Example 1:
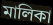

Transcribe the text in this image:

মালিকা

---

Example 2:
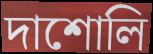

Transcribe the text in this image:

দাশোলি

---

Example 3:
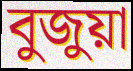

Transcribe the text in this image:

বুজুয়া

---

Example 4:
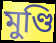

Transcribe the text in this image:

মুণ্ডি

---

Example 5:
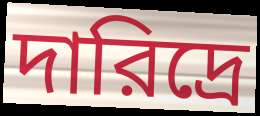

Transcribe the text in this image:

দারিদ্রে